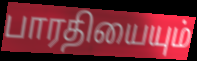
பாரதியையும்